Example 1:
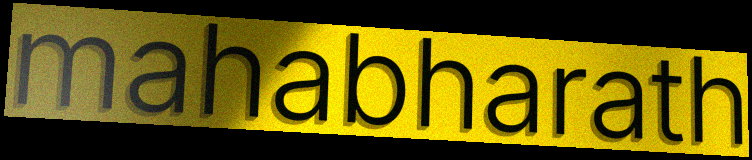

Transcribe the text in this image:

mahabharath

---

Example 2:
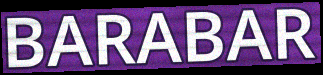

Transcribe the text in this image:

BARABAR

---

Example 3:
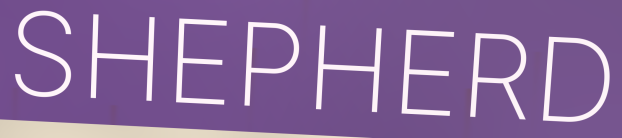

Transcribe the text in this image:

SHEPHERD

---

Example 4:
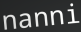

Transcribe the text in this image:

nanni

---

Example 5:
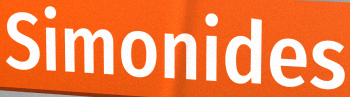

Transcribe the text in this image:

Simonides